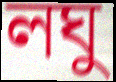
লঘু